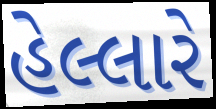
હેલ્લારે